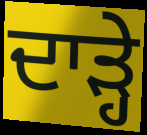
ਦਾੜ੍ਹੇ